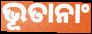
ଭୂତାନାଂ